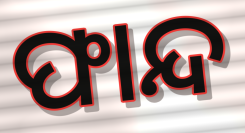
ଫାନ୍ଦ